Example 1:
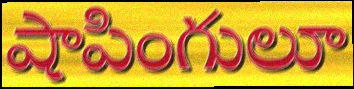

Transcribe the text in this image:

షాపింగులూ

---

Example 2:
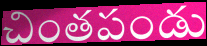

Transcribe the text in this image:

చింతపండు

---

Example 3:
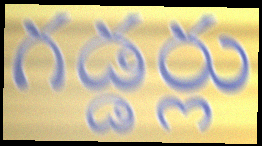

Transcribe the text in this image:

గడ్డర్లు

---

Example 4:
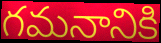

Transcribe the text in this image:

గమనానికి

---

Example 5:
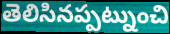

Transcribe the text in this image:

తెలిసినప్పట్నుంచి